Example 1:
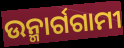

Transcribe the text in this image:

ଉନ୍ମାର୍ଗଗାମୀ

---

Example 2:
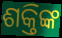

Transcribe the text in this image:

ଶକ୍ତିଙ୍କ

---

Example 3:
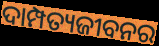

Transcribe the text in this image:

ଦାମ୍ପତ୍ୟଜୀବନର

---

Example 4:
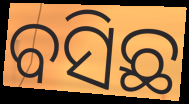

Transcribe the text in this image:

ବସିଛ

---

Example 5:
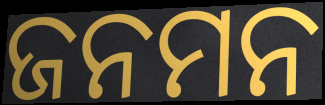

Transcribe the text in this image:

ଜନମନ